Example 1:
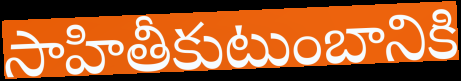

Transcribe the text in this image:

సాహితీకుటుంబానికి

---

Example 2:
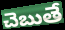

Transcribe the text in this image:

చెబుతే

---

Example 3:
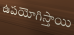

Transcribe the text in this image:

ఉపయోగిస్తాయి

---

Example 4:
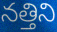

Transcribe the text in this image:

నత్తిని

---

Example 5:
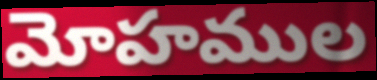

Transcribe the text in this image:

మోహముల